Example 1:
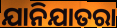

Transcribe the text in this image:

ଯାନିଯାତରା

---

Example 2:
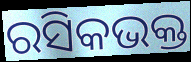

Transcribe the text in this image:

ରସିକଭକ୍ତ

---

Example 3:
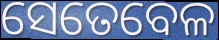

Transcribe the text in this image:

ସେତେବେଳ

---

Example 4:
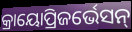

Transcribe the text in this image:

କ୍ରାୟୋପ୍ରିଜର୍ଭେସନ୍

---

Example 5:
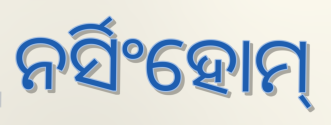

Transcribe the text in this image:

ନର୍ସିଂହୋମ୍